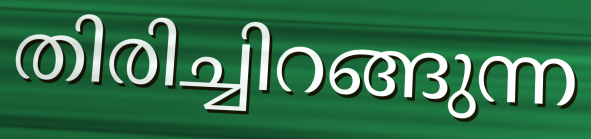
തിരിച്ചിറങ്ങുന്ന